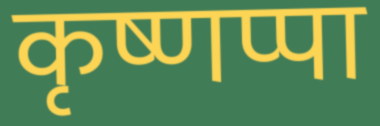
कृष्‍णप्‍पा